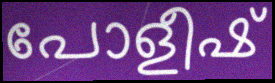
പോളീഷ്